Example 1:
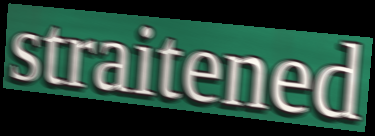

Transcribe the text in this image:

straitened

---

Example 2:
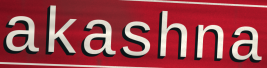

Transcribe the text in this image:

akashna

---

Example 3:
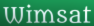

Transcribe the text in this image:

Wimsat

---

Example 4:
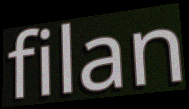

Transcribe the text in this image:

filan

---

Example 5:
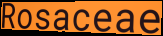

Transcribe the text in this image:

Rosaceae